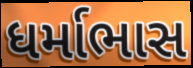
ધર્માભાસ